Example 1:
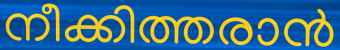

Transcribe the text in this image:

നീക്കിത്തരാൻ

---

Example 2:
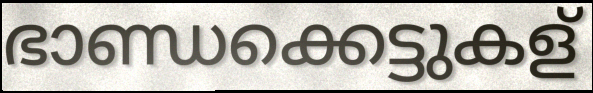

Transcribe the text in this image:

ഭാണ്ഡക്കെട്ടുകള്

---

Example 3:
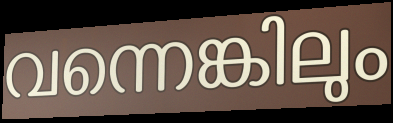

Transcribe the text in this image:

വന്നെങ്കിലും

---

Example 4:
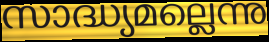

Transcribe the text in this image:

സാദ്ധ്യമല്ലെന്നു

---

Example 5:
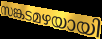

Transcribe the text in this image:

സങ്കടമഴയായി